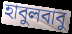
হাবুলবাবু